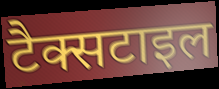
टैक्सटाइल